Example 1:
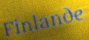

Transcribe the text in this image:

Finlande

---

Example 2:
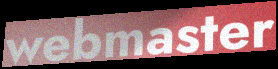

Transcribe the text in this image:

webmaster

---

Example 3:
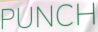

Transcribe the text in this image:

PUNCH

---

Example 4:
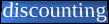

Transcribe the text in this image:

discounting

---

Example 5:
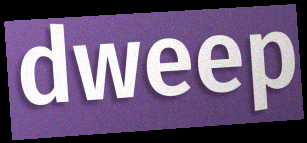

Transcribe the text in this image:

dweep